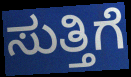
ಸುತ್ತಿಗೆ